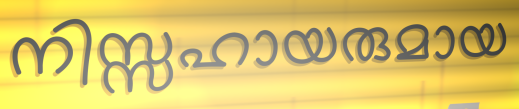
നിസ്സഹായരുമായ